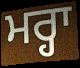
ਮਰ੍ਹਾ